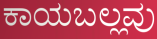
ಕಾಯಬಲ್ಲವು